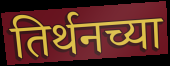
तिर्थनच्या